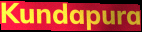
Kundapura